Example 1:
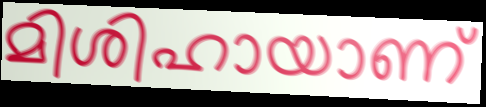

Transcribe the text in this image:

മിശിഹായാണ്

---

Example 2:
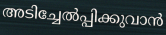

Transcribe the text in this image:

അടിച്ചേൽപ്പിക്കുവാൻ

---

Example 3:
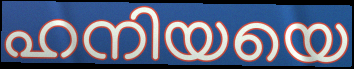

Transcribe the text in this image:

ഹനിയയെ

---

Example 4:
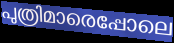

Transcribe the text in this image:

പുത്രിമാരെപ്പോലെ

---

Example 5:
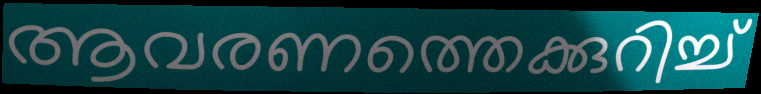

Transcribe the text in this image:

ആവരണത്തെക്കുറിച്ച്